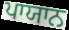
ਪਾਯਾਨ